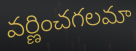
వర్ణించగలమా